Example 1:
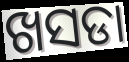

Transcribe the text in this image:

ଖସଡା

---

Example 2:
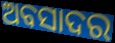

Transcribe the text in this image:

ଅବସାଦର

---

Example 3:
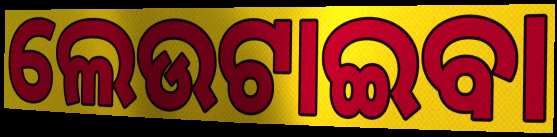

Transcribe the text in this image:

ଲେଉଟାଇବା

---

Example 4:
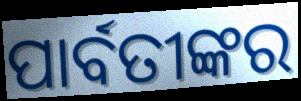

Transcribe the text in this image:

ପାର୍ବତୀଙ୍କର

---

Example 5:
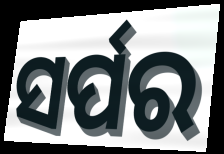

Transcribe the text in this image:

ସର୍ପର